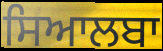
ਸਿਆਲਬਾ